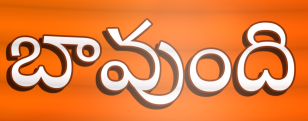
బావుంది